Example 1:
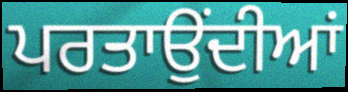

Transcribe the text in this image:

ਪਰਤਾਉਂਦੀਆਂ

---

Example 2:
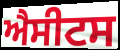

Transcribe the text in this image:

ਐਸੀਟਸ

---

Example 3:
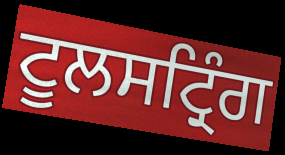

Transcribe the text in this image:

ਟੂਲਸਟ੍ਰਿੰਗ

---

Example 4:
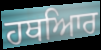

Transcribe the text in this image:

ਹਥਆਿਰ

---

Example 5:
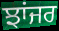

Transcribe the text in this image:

ਝਾਂਜਰ